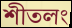
শীতলং